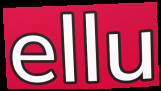
ellu